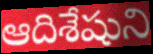
ఆదిశేషుని